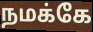
நமக்கே